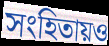
সংহিতায়ও